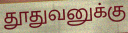
தூதுவனுக்கு